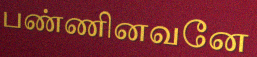
பண்ணினவனே